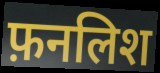
फ़नलिश